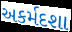
અકર્મદશા